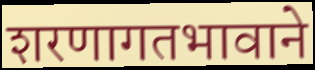
शरणागतभावाने